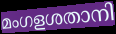
മംഗളശതാനി